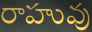
రాహువు